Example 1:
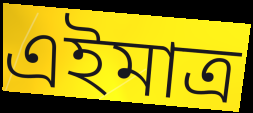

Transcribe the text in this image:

এইমাত্র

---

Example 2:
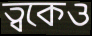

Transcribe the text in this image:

ত্বকেও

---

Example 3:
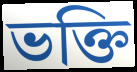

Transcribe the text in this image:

ভক্তি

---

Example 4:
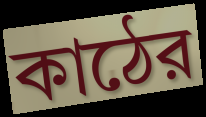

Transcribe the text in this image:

কাঠের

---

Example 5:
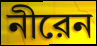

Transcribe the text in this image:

নীরেন